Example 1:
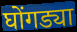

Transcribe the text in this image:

घोंगड्या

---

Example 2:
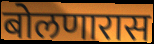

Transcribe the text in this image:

बोलणारास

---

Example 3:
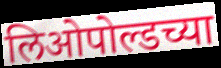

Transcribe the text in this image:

लिओपोल्डच्या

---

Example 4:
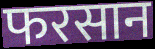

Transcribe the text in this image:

फरसान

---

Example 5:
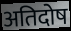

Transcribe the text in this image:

अतिदोष